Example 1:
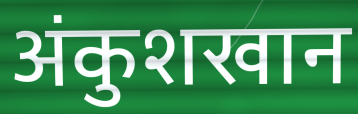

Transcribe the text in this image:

अंकुशखान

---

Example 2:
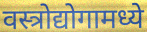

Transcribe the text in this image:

वस्त्रोद्योगामध्ये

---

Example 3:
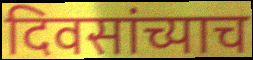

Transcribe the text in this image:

दिवसांच्याच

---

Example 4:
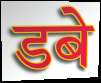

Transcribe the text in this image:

डबे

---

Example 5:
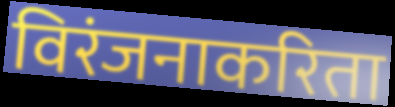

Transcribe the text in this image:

विरंजनाकरिता